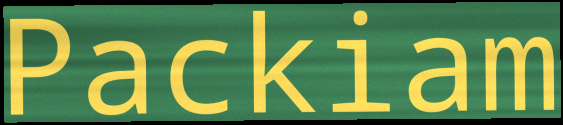
Packiam